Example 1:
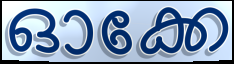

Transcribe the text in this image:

ഓക്കേ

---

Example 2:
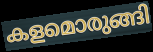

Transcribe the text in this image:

കളമൊരുങ്ങി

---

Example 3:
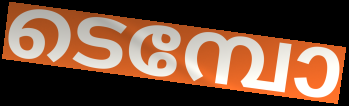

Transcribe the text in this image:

ടെമ്പോ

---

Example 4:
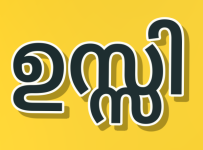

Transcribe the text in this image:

ഉസ്സി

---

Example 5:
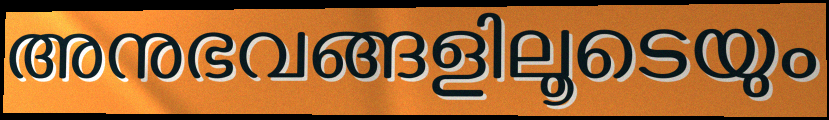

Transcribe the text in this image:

അനുഭവങ്ങളിലൂടെയും